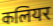
कलियर